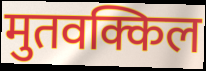
मुतवक्किल